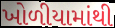
ખોળીયામાંથી